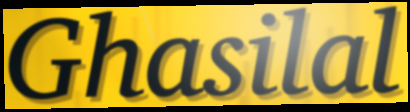
Ghasilal